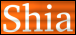
Shia